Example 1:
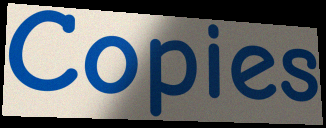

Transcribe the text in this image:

Copies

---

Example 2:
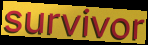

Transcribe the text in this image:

survivor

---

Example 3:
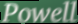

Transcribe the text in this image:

Powell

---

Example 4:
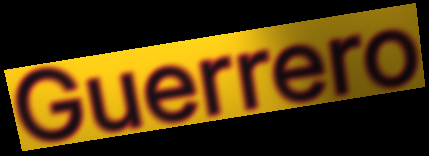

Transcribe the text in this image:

Guerrero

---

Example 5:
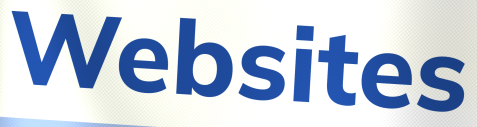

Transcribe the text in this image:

Websites